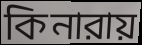
কিনারায়